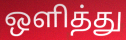
ஒளித்து